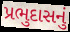
પ્રભુદાસનું